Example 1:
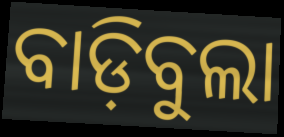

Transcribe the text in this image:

ବାଡ଼ିବୁଲା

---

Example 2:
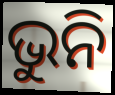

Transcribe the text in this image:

ଭୁନି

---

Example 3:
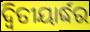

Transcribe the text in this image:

ଦ୍ୱିତୀୟାର୍ଦ୍ଧର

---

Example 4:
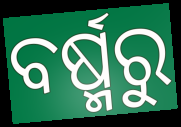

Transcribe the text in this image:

ବର୍ଷ୍ମରୁ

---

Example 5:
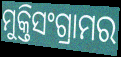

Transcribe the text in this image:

ମୁକ୍ତିସଂଗ୍ରାମର